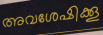
അവശേഷിക്കൂ